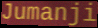
Jumanji